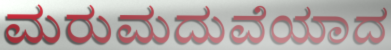
ಮರುಮದುವೆಯಾದ